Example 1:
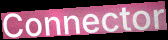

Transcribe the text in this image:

Connector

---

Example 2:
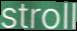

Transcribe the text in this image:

stroll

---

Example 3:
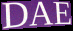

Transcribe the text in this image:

DAE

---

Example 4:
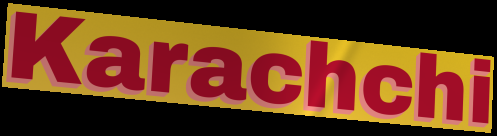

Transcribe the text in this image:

Karachchi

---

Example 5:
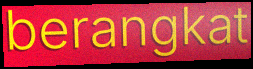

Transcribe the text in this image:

berangkat